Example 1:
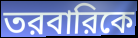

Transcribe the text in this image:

তরবারিকে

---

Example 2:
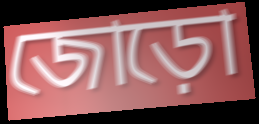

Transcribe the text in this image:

জোড়ো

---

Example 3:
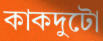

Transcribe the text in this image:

কাকদুটো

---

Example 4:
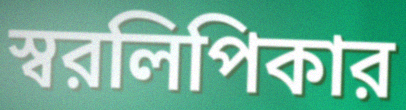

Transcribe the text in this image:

স্বরলিপিকার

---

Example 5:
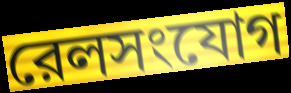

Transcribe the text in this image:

রেলসংযোগ